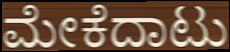
ಮೇಕೆದಾಟು